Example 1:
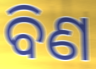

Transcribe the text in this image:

ବିଣ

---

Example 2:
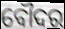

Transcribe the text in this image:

ବୌଦର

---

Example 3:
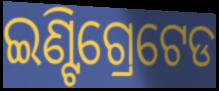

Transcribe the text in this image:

ଇଣ୍ଟିଗ୍ରେଟେଡ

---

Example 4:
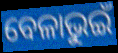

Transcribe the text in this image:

ବେଳାଭୁଇଁ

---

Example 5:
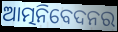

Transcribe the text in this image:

ଆତ୍ମନିବେଦନର